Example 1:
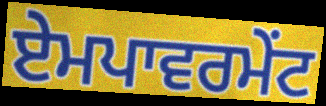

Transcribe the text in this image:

ਏਮਪਾਵਰਮੇਂਟ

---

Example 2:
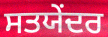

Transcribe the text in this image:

ਸਤਯੇਂਦਰ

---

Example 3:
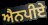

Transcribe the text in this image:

ਐਨਪੀਏ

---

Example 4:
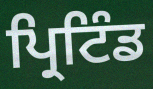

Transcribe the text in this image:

ਪ੍ਰਿਟਿੰਡ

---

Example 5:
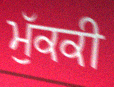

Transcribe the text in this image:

ਮੁੱਕਕੀ